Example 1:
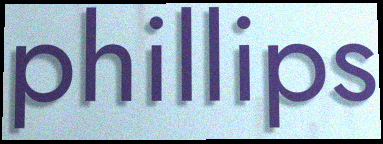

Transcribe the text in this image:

phillips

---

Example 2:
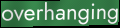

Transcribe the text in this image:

overhanging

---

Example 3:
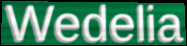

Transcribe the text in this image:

Wedelia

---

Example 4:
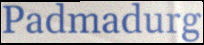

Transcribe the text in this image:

Padmadurg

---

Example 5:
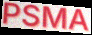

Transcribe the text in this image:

PSMA